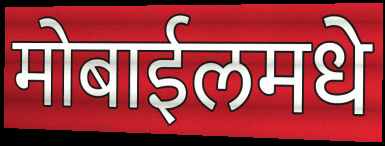
मोबाईलमधे